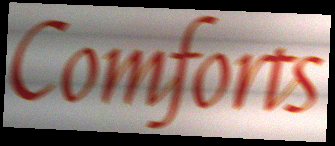
Comforts